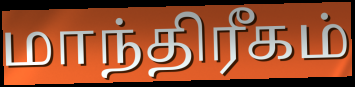
மாந்திரீகம்